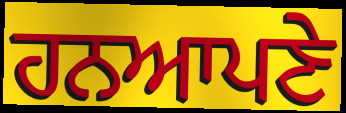
ਹਨਆਪਣੇ